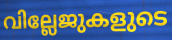
വില്ലേജുകളുടെ